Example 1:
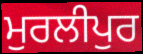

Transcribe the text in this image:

ਮੁਰਲੀਪੁਰ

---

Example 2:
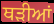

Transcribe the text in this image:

ਥੜੀਆਂ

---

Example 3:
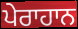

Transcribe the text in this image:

ਪੇਰਾਹਾਨ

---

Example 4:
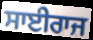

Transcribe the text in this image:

ਸਾਈਰਾਜ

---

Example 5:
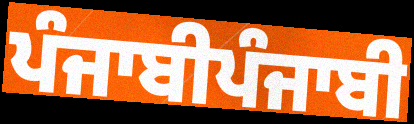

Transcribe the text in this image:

ਪੰਜਾਬੀਪੰਜਾਬੀ